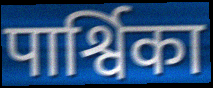
पार्श्विका